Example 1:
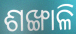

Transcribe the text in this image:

ଶଙ୍ଖାଳି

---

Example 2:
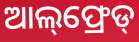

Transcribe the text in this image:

ଆଲ୍‌ଫ୍ରେଡ୍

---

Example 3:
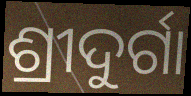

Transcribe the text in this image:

ଶ୍ରୀଦୁର୍ଗା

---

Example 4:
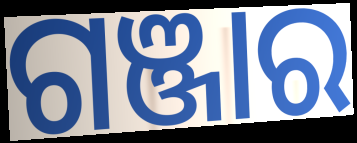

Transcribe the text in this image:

ଗଞ୍ଜାର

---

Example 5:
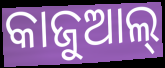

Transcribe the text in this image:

କାଜୁଆଲ୍